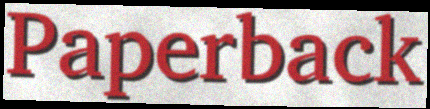
Paperback